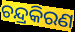
ଚନ୍ଦ୍ରକିରଣ